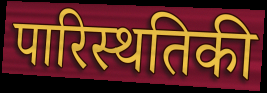
पारिस्थतिकी